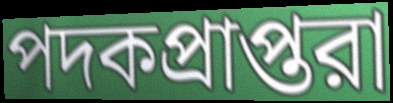
পদকপ্রাপ্তরা